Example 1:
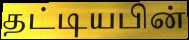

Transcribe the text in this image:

தட்டியபின்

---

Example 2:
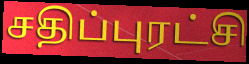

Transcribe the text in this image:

சதிப்புரட்சி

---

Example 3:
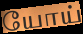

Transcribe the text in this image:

யோய்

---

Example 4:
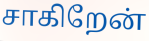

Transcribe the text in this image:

சாகிறேன்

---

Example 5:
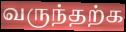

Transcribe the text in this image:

வருந்தற்க